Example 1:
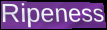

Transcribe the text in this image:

Ripeness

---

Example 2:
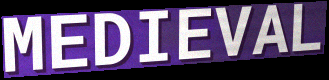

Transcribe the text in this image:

MEDIEVAL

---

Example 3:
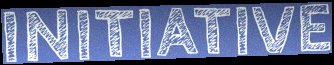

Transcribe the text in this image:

INITIATIVE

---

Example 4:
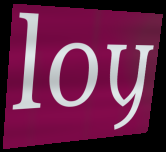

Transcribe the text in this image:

loy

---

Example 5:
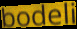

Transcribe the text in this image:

bodeli